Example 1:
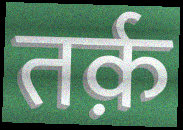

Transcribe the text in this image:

तर्क़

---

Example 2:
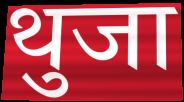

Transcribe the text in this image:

थुजा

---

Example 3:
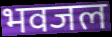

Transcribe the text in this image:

भवजल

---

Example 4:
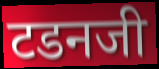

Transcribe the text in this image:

टडनजी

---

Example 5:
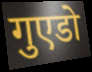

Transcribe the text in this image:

गुएडो